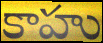
కాహు